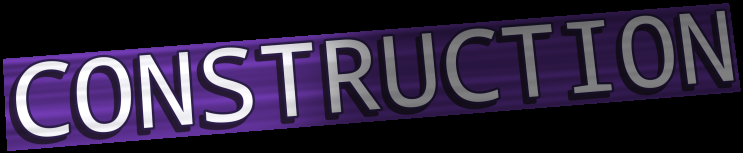
CONSTRUCTION